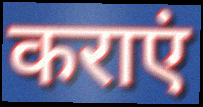
कराएं